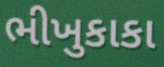
ભીખુકાકા